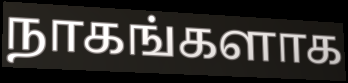
நாகங்களாக